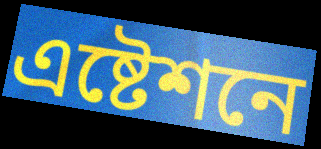
এষ্টেশনে